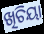
ଖିଚିୟା